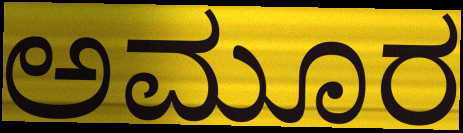
ಅಮೂರ